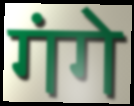
गंगे